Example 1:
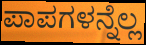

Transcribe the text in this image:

ಪಾಪಗಳನ್ನೆಲ್ಲ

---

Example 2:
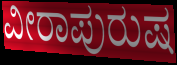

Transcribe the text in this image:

ವೀರಾಪುರುಷ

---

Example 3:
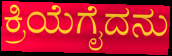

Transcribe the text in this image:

ಕ್ರಿಯೆಗೈದನು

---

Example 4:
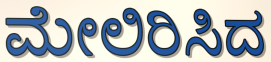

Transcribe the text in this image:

ಮೇಲಿರಿಸಿದ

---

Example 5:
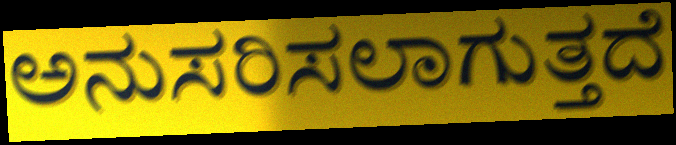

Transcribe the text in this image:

ಅನುಸರಿಸಲಾಗುತ್ತದೆ